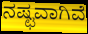
ನಷ್ಟವಾಗಿವೆ